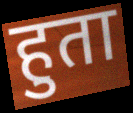
हुता